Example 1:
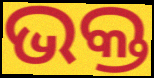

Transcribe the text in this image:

ଭକ୍ତ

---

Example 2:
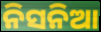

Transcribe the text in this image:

ନିସନିଆ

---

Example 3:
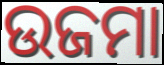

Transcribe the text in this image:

ଉଜମା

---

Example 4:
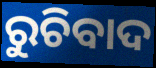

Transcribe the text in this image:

ରୁଚିବାଦ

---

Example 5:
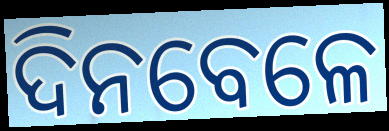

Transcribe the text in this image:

ଦିନବେଳେ